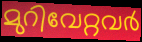
മുറിവേറ്റവർ